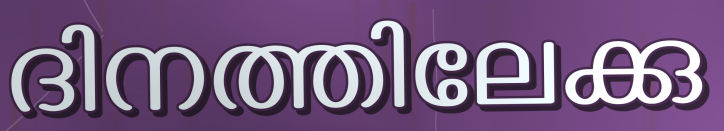
ദിനത്തിലേക്കു